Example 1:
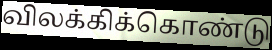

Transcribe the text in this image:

விலக்கிக்கொண்டு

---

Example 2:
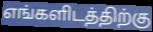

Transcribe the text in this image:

எங்களிடத்திற்கு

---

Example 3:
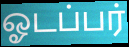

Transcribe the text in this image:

ஓடப்பர்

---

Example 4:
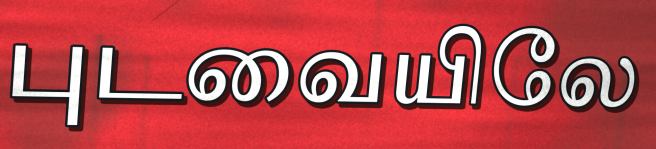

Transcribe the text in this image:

புடவையிலே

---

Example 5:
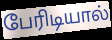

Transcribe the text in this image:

பேரிடியால்